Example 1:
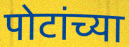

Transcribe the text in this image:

पोटांच्या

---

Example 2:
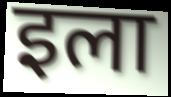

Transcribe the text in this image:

इला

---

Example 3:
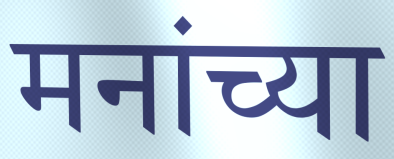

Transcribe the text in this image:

मनांच्या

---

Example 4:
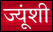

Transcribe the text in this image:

ज्यूंशी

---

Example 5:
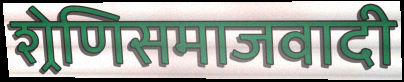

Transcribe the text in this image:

श्रेणिसमाजवादी